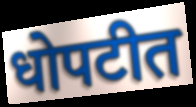
धोपटीत